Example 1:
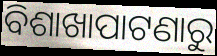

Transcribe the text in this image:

ବିଶାଖାପାଟଣାରୁ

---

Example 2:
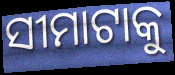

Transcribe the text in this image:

ସୀମାଟାକୁ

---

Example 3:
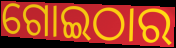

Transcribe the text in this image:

ଗୋଇଠାର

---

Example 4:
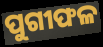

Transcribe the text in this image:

ପୁଗୀଫଳ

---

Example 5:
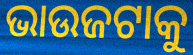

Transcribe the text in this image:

ଭାଉଜଟାକୁ